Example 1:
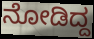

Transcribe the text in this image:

ನೋಡಿದ್ದ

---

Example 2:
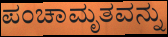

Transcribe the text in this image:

ಪಂಚಾಮೃತವನ್ನು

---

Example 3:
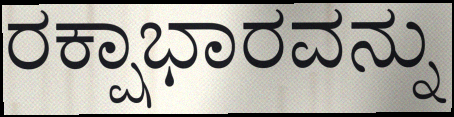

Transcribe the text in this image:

ರಕ್ಷಾಭಾರವನ್ನು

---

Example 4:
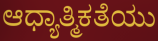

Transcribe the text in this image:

ಆಧ್ಯಾತ್ಮಿಕತೆಯು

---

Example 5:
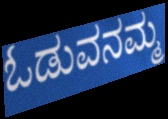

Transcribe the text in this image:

ಓಡುವನಮ್ಮ